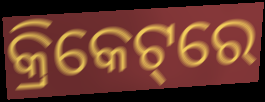
କ୍ରିକେଟ୍‌ରେ